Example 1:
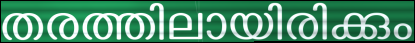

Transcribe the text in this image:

തരത്തിലായിരിക്കും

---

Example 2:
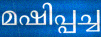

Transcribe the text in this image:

മഷിപ്പച്ച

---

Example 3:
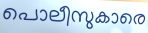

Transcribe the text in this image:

പൊലീസുകാരെ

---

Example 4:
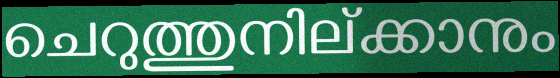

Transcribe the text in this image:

ചെറുത്തുനില്ക്കാനും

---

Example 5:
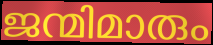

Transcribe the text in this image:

ജന്മിമാരും